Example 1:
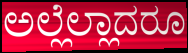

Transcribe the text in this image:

ಅಲ್ಲೆಲ್ಲಾದರೂ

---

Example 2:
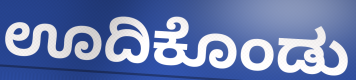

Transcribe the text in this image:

ಊದಿಕೊಂಡು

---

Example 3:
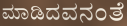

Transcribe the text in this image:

ಮಾಡಿದವನಂತೆ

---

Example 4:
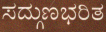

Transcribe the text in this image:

ಸದ್ಗುಣಭರಿತ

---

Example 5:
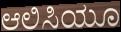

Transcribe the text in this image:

ಆಲಿಸಿಯೂ